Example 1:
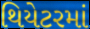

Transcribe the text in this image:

થિયેટરમાં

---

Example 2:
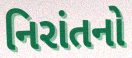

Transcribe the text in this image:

નિરાંતનો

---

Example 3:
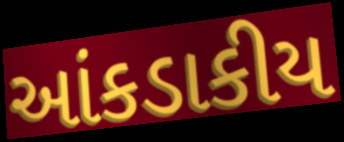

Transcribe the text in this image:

આંકડાકીય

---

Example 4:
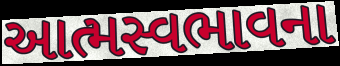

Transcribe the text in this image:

આત્મસ્વભાવના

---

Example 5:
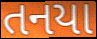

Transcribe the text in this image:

તનયા